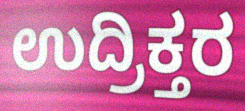
ಉದ್ರಿಕ್ತರ